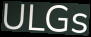
ULGs